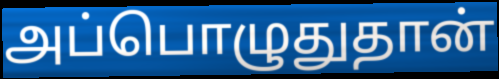
அப்பொழுதுதான்